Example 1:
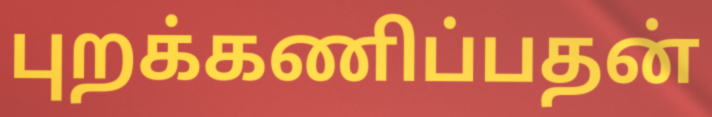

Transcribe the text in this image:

புறக்கணிப்பதன்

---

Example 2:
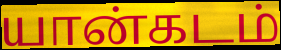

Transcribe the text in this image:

யான்கடம்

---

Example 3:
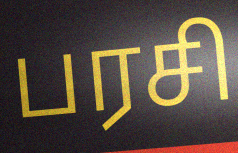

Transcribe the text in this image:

பரசி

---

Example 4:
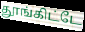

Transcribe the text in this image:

தூங்கிட்டே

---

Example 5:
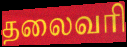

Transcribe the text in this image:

தலைவரி